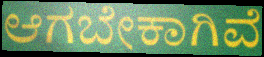
ಆಗಬೇಕಾಗಿವೆ